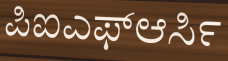
ಪಿಐಎಫ್ಆರ್ಸಿ